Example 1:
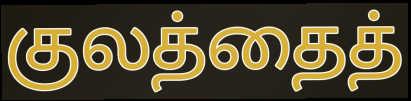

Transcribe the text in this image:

குலத்தைத்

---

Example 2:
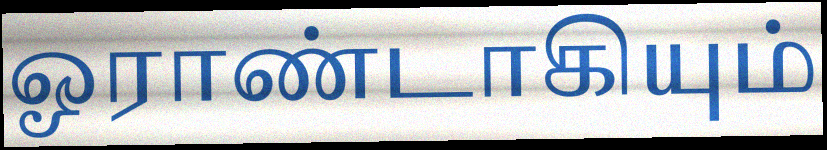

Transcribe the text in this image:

ஓராண்டாகியும்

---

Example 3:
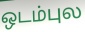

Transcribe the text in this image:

ஒடம்புல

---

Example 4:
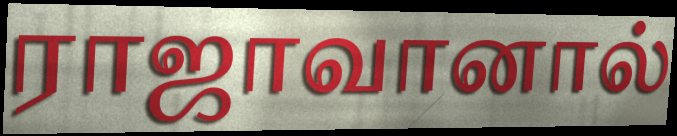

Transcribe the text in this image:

ராஜாவானால்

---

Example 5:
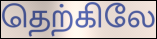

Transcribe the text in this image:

தெற்கிலே